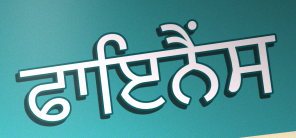
ਫਾਇਨੈਂਸ